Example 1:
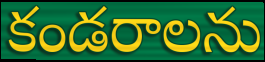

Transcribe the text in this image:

కండరాలను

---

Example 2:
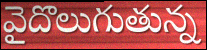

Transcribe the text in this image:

వైదొలుగుతున్న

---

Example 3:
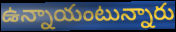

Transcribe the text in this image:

ఉన్నాయంటున్నారు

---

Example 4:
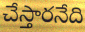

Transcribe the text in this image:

చేస్తారనేది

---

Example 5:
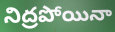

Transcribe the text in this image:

నిద్రపోయినా